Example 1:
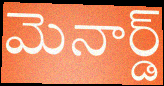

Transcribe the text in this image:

మెనార్డ్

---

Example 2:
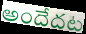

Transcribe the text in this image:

అందేదట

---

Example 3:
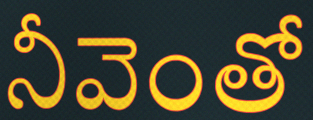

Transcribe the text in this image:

నీవెంతో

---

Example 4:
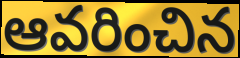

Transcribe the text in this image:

ఆవరించిన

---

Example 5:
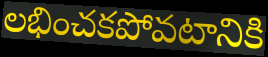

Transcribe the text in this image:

లభించకపోవటానికి